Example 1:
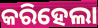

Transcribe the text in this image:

କରିହେଲା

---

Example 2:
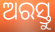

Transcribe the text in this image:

ଅରସ୍ତୁ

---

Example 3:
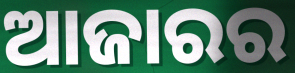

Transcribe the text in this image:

ଆଜାରର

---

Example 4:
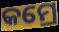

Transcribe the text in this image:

କମ୍ରେ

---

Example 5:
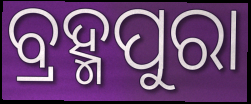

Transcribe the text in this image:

ବ୍ରହ୍ମପୁରା